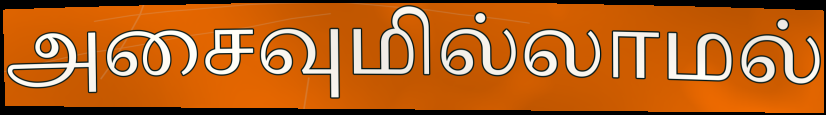
அசைவுமில்லாமல்